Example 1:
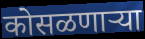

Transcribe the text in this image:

कोसळणार्‍या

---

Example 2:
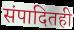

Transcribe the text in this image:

संपादितही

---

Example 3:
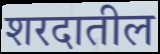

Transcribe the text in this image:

शरदातील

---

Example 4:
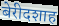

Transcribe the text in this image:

बेरीदशाह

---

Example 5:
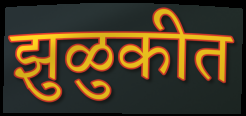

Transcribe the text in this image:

झुळुकीत